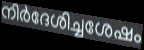
നിർദേശിച്ചശേഷം